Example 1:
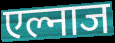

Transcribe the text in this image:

एल्नाज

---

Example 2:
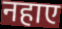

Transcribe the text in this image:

नहाए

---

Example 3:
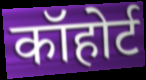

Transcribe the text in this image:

कॉहोर्ट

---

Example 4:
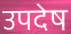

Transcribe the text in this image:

उपदेष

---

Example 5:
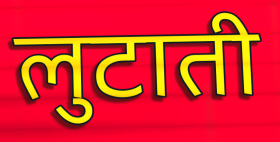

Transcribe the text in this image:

लुटाती